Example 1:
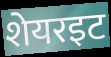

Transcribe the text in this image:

शेयरइट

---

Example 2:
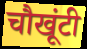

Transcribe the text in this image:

चौखूंटी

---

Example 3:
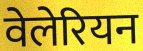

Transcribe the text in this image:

वेलेरियन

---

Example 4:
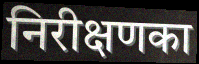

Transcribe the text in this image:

निरीक्षणका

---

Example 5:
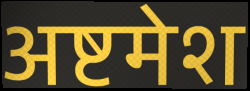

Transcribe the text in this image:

अष्टमेश